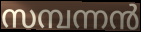
സമ്പന്നൻ